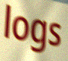
logs